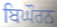
ਬਿਘੌਰਨ